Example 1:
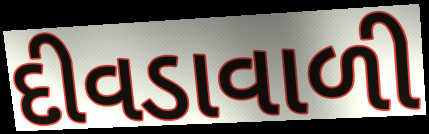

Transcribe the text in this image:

દીવડાવાળી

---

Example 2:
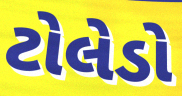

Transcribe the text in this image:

ટોલેડો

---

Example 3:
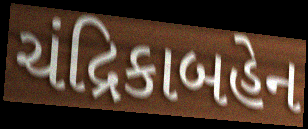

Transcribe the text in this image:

ચંદ્રિકાબહેન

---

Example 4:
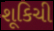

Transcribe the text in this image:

શૂકિચી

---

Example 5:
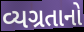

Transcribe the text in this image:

વ્યગ્રતાનો